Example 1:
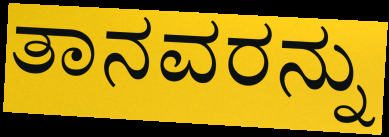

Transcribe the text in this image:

ತಾನವರನ್ನು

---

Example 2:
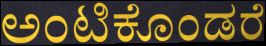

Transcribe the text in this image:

ಅಂಟಿಕೊಂಡರೆ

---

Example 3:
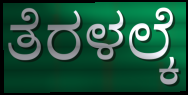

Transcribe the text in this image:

ತೆರಳಲ್ಕೆ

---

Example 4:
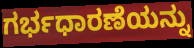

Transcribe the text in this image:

ಗರ್ಭಧಾರಣೆಯನ್ನು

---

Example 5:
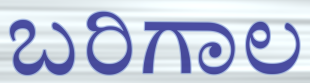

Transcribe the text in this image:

ಬರಿಗಾಲ